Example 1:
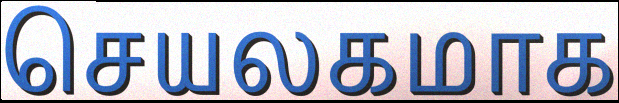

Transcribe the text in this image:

செயலகமாக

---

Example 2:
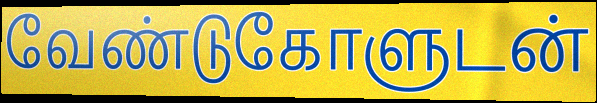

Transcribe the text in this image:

வேண்டுகோளுடன்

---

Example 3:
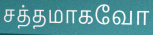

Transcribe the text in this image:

சத்தமாகவோ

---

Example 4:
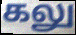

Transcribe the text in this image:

கலு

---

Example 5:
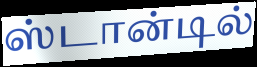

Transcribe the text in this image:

ஸ்டான்டில்